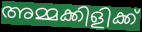
അമ്മക്കിളിക്ക്